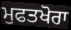
ਮੁਫਤਖੋਰਾ